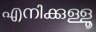
എനിക്കുള്ളൂ